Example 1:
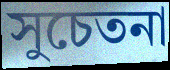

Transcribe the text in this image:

সুচেতনা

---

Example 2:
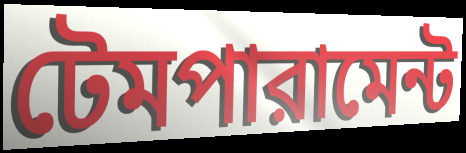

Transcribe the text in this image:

টেমপারামেন্ট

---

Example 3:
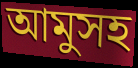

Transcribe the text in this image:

আমুসহ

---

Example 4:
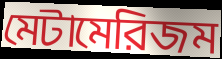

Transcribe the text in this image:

মেটামেরিজম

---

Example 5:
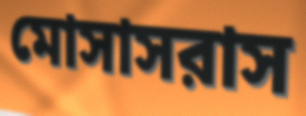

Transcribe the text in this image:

মোসাসরাস